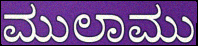
ಮುಲಾಮು